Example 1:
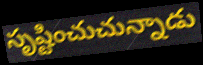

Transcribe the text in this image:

సృష్టించుచున్నాడు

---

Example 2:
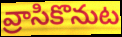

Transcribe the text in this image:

వ్రాసికొనుట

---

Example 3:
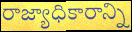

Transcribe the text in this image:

రాజ్యాధికారాన్ని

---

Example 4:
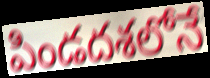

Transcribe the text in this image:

పిండదశలోనే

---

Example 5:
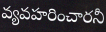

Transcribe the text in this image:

వ్యవహరించారనీ